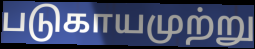
படுகாயமுற்று